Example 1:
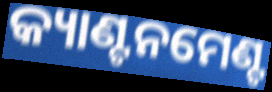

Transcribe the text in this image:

କ୍ୟାଣ୍ଟନମେଣ୍ଟ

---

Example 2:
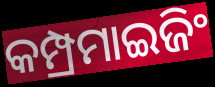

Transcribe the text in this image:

କମ୍ପ୍ରମାଇଜିଂ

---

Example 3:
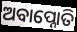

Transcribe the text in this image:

ଅବାପ୍ନୋତି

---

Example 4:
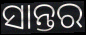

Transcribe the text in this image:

ସାନ୍ତର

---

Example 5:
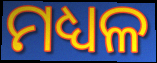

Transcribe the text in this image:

ମଧ୍ୟଳ